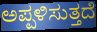
ಅಪ್ಪಳಿಸುತ್ತದೆ